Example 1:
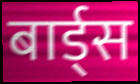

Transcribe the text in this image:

बार्ड्स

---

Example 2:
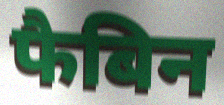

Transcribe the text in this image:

फैबिन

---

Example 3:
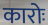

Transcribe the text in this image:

कारोः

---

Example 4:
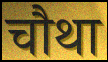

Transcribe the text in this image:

चौथा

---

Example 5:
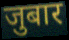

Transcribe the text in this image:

जुबार